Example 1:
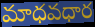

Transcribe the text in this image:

మాధవధార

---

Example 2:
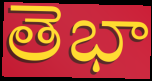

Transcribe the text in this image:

తెభా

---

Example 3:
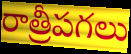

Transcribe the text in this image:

రాత్రీపగలు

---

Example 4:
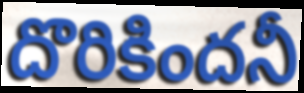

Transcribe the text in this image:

దొరికిందనీ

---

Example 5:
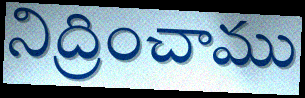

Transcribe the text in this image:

నిద్రించాము